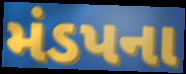
મંડપના